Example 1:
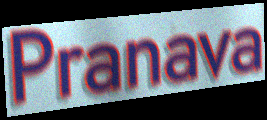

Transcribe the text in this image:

Pranava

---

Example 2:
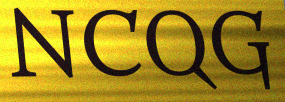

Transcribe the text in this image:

NCQG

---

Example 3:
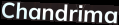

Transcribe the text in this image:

Chandrima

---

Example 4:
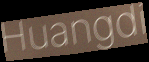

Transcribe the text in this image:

Huangdi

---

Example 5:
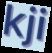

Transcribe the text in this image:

kji